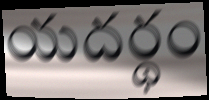
యదర్థం